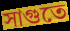
সাগুতে